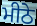
ਮੀਠੇ